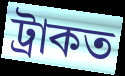
ট্ৰাকত